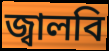
জ্বালবি